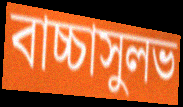
বাচ্চাসুলভ